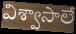
విశ్వాసాలే